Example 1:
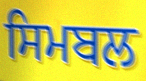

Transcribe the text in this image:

ਸਿਮਬਲ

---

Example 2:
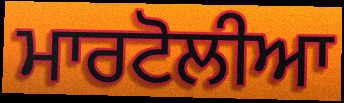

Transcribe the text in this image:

ਮਾਰਟੋਲੀਆ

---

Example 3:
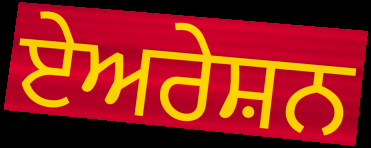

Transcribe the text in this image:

ਏਅਰੇਸ਼ਨ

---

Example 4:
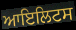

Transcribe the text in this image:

ਆਇਲਿਟਸ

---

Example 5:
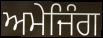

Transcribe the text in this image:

ਅਮੇਜਿੰਗ